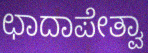
ಛಾದಾಪೇತ್ವಾ